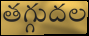
తగ్గుదల